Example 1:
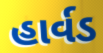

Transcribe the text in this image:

હાર્વડ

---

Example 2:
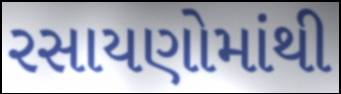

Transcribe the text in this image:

રસાયણોમાંથી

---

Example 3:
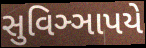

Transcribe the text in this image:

સુવિઞ્ઞાપયે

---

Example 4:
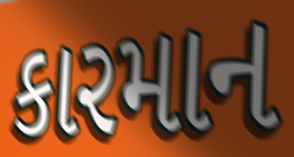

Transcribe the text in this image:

કારમાન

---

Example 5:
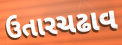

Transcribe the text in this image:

ઉતારચઢાવ